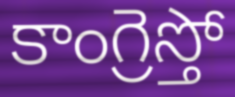
కాంగ్రెస్తో